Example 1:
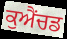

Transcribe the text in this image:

ਕੁਐਂਚਡ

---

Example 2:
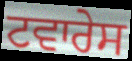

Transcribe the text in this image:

ਟਵਾਰੇਸ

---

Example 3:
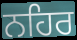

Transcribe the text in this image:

ਨਹਿਰ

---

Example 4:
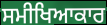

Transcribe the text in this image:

ਸਮੀਖਿਆਕਾਰ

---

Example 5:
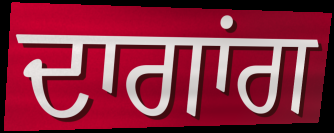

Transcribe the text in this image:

ਦਾਗਾਂਗ